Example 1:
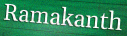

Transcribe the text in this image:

Ramakanth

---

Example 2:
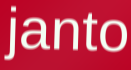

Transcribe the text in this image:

janto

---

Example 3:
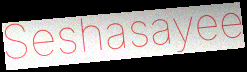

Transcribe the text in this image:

Seshasayee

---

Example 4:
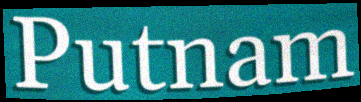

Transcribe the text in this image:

Putnam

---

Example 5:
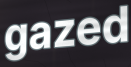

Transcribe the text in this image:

gazed